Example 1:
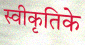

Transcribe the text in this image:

स्वीकृतिके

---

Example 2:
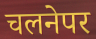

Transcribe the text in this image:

चलनेपर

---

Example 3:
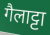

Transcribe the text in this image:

गैलाट्टा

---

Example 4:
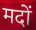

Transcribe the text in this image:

मदों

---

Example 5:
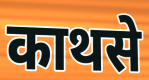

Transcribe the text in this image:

काथसे